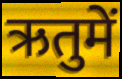
ऋतुमें